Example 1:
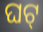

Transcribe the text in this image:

ଘଟ୍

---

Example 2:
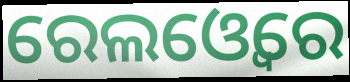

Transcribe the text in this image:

ରେଲଓ୍ୱେରେ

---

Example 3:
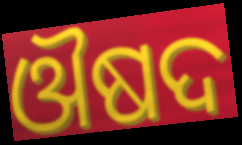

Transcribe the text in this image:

ଔଷଦ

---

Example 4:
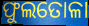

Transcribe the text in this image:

ଫୁଲତୋଳା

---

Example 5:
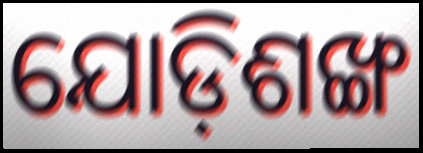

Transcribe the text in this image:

ଯୋଡ଼ିଶଙ୍ଖ